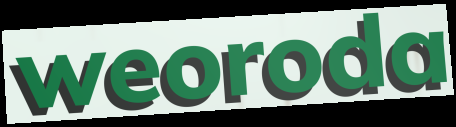
weoroda